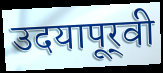
उदयापूर्वी